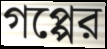
গপ্পের